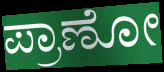
ಪ್ರಾಣೋ